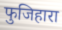
फुजिहारा